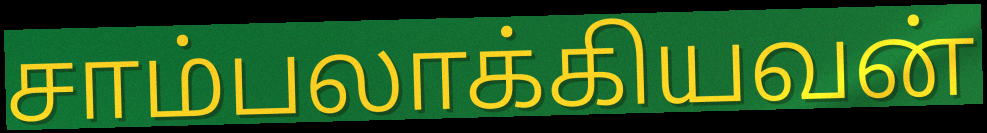
சாம்பலாக்கியவன்